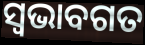
ସ୍ୱଭାବଗତ